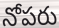
నోపరు